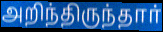
அறிந்திருந்தார்